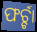
ଫର୍ଚ୍ଚା